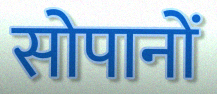
सोपानों